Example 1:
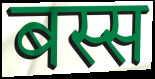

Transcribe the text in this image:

बस्स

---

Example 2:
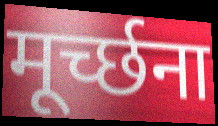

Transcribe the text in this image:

मूर्च्छना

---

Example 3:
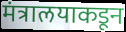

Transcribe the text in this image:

मंत्रालयाकडून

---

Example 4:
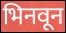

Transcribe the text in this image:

भिनवून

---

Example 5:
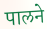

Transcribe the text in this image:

पालने